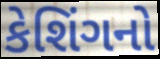
કેશિંગનો